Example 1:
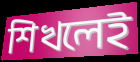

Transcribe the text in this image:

শিখলেই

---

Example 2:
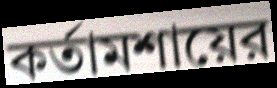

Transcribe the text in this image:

কর্তামশায়ের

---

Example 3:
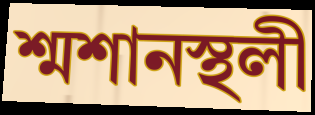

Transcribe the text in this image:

শ্মশানস্থলী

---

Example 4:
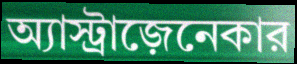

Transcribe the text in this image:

অ্যাস্ট্রাজ়েনেকার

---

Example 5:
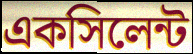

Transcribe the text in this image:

একসিলেন্ট